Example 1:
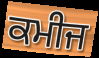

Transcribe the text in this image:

ਕਮੀਜ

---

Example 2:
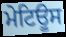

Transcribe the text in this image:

ਮੇਟਿਊਸ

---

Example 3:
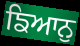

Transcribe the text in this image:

ਙਿਆਨੁ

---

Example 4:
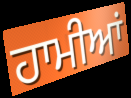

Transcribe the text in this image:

ਹਾਮੀਆਂ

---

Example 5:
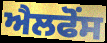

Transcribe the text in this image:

ਐਲਫੋਂਸ